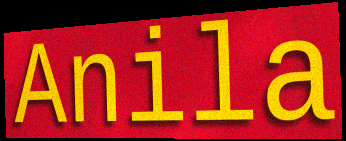
Anila